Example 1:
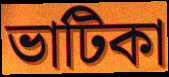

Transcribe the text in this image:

ভাটিকা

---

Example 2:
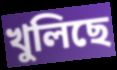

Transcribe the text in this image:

খুলিছে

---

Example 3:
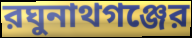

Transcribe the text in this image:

রঘুনাথগঞ্জের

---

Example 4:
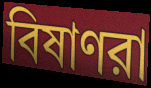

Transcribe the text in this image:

বিষাণরা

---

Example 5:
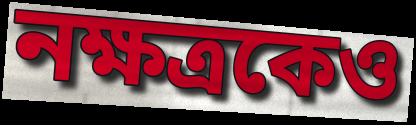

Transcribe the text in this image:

নক্ষত্রকেও